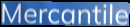
Mercantile